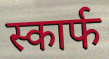
स्कार्फ